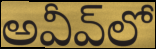
అవీవ్‌లో